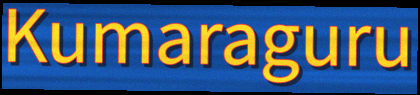
Kumaraguru